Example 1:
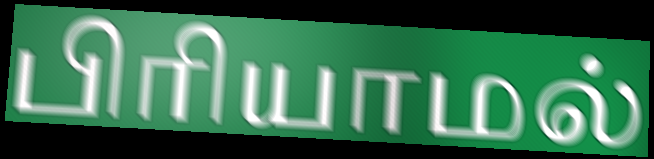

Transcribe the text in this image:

பிரியாமல்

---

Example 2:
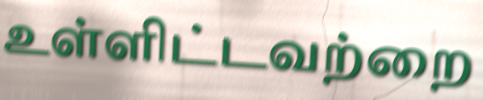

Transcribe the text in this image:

உள்ளிட்டவற்றை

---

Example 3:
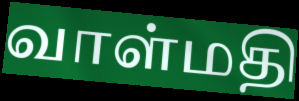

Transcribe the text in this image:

வாள்மதி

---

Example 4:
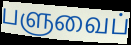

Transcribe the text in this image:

பளுவைப்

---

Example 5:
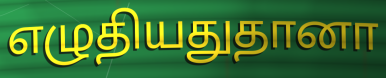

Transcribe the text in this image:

எழுதியதுதானா